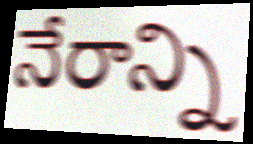
నేరాన్ని